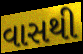
વાસથી